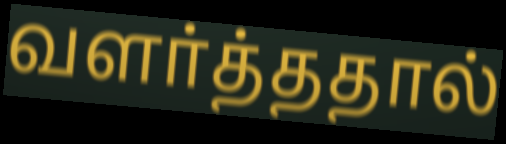
வளர்த்ததால்